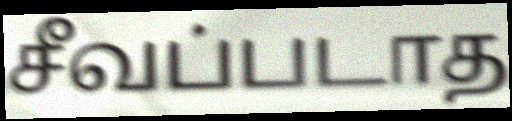
சீவப்படாத